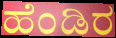
ಹೆಂಡಿರ